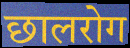
छालरोग